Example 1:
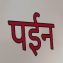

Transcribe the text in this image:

पईन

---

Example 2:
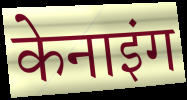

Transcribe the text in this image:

केनाइंग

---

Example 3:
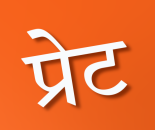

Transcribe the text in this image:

प्रेट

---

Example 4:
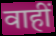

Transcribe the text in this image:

वाहीं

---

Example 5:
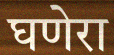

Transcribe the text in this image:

घणेरा